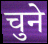
चुने